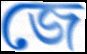
জে